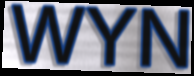
WYN